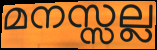
മനസ്സല്ല